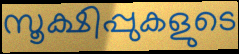
സൂക്ഷിപ്പുകളുടെ